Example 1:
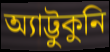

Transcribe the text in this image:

অ্যাট্টুকুনি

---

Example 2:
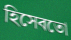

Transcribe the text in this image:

হিসেবতো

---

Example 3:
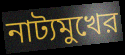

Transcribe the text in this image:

নাট্যমুখের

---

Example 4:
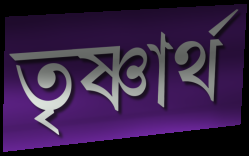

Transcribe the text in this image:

তৃষ্ণার্থ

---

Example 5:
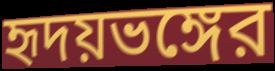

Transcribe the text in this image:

হৃদয়ভঙ্গের